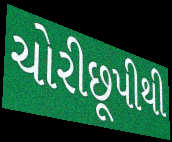
ચોરીછૂપીથી